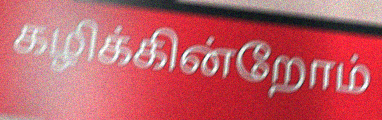
கழிக்கின்றோம்